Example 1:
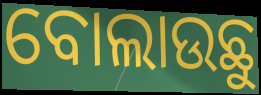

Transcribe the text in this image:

ବୋଲାଉଛୁ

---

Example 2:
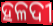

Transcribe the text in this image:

ହଳଦୀ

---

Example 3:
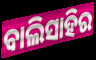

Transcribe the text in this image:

ବାଲିସାହିର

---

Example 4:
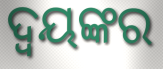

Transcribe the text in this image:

ଦ୍ବୟଙ୍କର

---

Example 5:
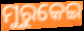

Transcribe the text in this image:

ମୁରୁକେଇ